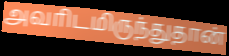
அவரிடமிருந்துதான்